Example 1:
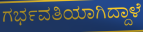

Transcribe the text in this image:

ಗರ್ಭವತಿಯಾಗಿದ್ದಾಳೆ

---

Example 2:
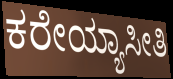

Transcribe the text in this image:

ಕರೇಯ್ಯಾಸೀತಿ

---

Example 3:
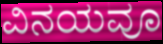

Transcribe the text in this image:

ವಿನಯವೂ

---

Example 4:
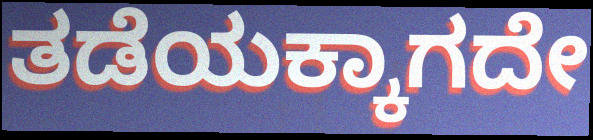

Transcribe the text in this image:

ತಡೆಯಕ್ಕಾಗದೇ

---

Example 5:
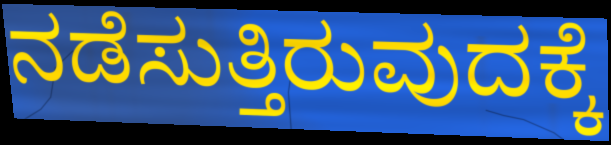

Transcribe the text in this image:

ನಡೆಸುತ್ತಿರುವುದಕ್ಕೆ